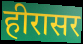
हीरासर